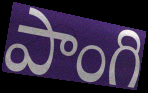
పాంగి